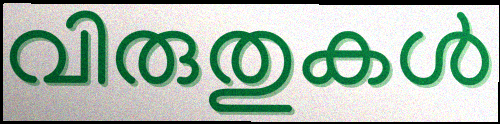
വിരുതുകൾ